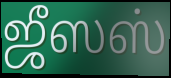
ஜீஸஸ்